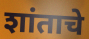
शांताचे